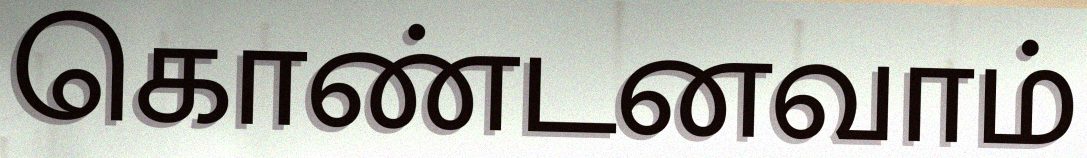
கொண்டனவாம்